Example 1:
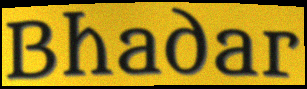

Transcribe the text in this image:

Bhadar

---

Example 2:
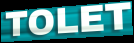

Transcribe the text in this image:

TOLET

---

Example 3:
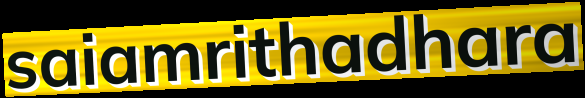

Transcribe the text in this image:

saiamrithadhara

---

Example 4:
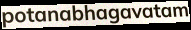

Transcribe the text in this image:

potanabhagavatam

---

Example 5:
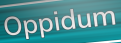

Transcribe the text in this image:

Oppidum